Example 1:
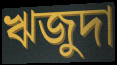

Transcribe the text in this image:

ঋজুদা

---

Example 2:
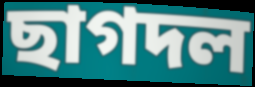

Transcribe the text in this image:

ছাগদল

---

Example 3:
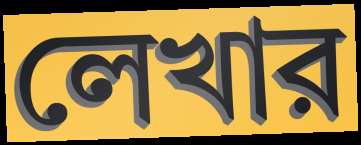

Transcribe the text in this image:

লেখার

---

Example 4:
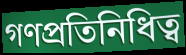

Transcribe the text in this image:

গণপ্রতিনিধিত্ব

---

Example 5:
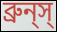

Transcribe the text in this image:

ব্রুন্‌স্